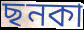
ছনকা